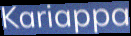
Kariappa